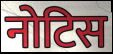
नोटिस